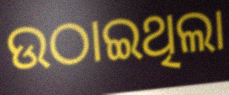
ଉଠାଇଥିଲା